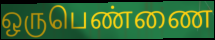
ஒருபெண்ணை